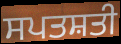
ਸਪਤਸ਼ਤੀ